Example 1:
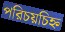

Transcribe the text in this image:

পরিচয়চিহ্ন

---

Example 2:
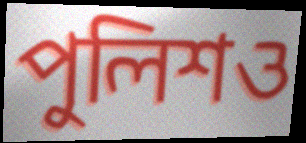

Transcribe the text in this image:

পুলিশও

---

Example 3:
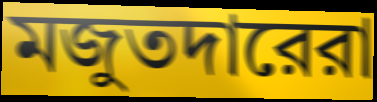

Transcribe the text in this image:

মজুতদারেরা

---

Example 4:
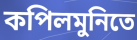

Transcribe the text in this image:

কপিলমুনিতে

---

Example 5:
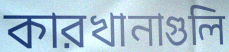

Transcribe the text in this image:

কারখানাগুলি